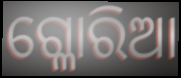
ଗ୍ଳୋରିଆ